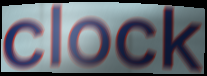
clock